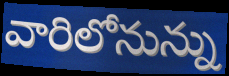
వారిలోనున్ను